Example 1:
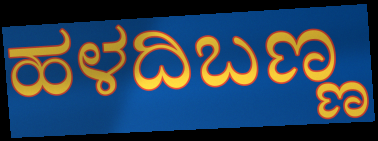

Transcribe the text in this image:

ಹಳದಿಬಣ್ಣ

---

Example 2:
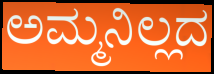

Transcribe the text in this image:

ಅಮ್ಮನಿಲ್ಲದ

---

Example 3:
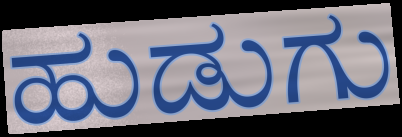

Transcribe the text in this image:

ಹುಡುಗು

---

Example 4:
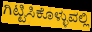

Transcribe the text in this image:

ಗಿಟ್ಟಿಸಿಕೊಳ್ಳುವಲ್ಲಿ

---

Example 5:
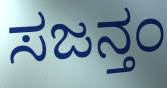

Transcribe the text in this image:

ಸಜನ್ತಂ